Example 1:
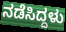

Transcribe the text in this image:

ನಡೆಸಿದ್ದಳು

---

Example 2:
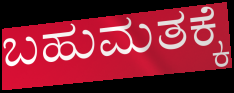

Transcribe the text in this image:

ಬಹುಮತಕ್ಕೆ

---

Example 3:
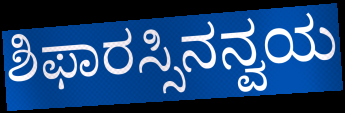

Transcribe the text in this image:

ಶಿಫಾರಸ್ಸಿನನ್ವಯ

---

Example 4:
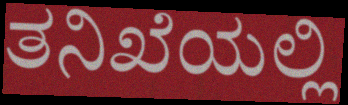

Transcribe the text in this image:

ತನಿಖೆಯಲ್ಲಿ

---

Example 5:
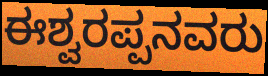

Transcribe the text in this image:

ಈಶ್ವರಪ್ಪನವರು